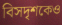
বিসদৃশকেও